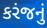
કરંજનું